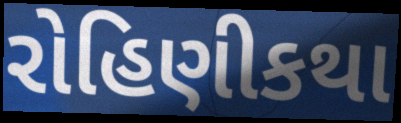
રોહિણીકથા